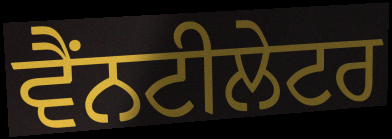
ਵੈਂਨਟੀਲੇਟਰ